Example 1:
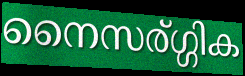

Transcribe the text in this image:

നൈസര്ഗ്ഗിക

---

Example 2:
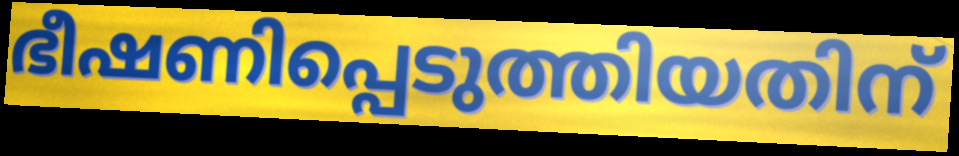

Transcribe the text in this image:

ഭീഷണിപ്പെടുത്തിയതിന്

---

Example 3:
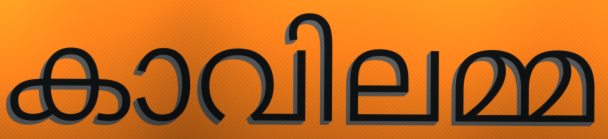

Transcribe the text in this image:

കാവിലമ്മ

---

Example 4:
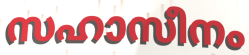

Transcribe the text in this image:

സഹാസീനം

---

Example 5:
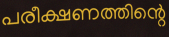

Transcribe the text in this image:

പരീക്ഷണത്തിന്റെ